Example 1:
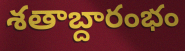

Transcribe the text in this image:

శతాబ్దారంభం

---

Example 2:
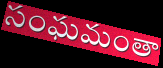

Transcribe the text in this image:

సంఘమంతా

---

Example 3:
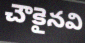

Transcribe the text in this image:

చౌకైనవి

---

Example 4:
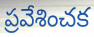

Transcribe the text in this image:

ప్రవేశించక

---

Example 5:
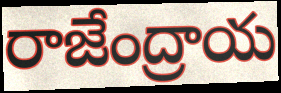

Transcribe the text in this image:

రాజేంద్రాయ